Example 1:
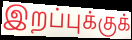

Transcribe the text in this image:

இறப்புக்குக்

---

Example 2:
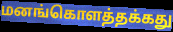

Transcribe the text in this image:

மனங்கொளத்தக்கது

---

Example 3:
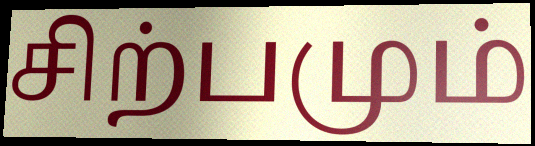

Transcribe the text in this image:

சிற்பமும்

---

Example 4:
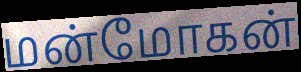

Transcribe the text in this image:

மன்மோகன்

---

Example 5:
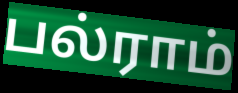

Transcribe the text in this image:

பல்ராம்